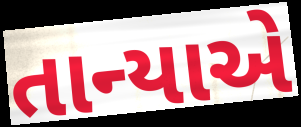
તાન્યાએ